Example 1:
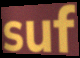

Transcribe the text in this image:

suf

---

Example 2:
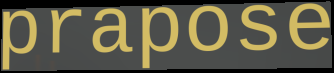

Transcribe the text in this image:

prapose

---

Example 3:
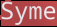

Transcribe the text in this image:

Syme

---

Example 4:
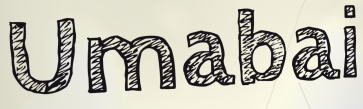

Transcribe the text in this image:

Umabai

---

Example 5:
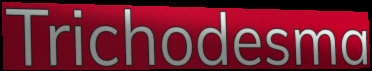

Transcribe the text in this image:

Trichodesma